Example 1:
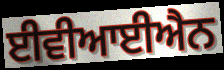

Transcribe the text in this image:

ਈਵੀਆਈਐਨ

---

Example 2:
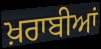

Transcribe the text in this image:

ਖ਼ਰਾਬੀਆਂ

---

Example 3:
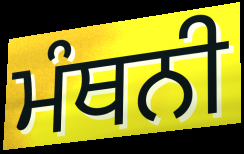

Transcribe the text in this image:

ਮੰਥਨੀ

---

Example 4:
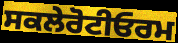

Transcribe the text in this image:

ਸਕਲੇਰੋਟੀਓਰਮ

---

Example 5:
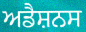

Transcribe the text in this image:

ਅਡੈਸ਼ਨਸ